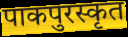
पाकपुरस्कृत